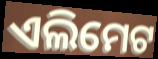
ଏଲିମେଟ